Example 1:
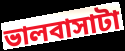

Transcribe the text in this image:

ভালবাসাটা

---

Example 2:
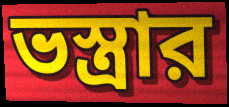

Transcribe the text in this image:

ভস্ত্রার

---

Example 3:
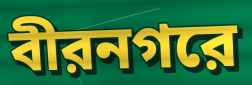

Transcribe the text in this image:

বীরনগরে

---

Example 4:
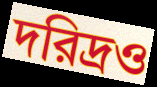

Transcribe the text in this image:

দরিদ্রও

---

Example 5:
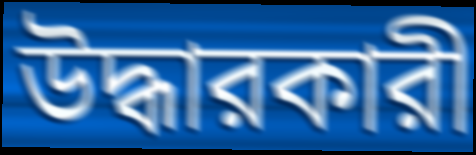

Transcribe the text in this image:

উদ্ধারকারী